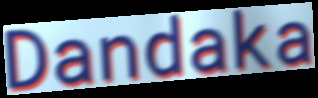
Dandaka